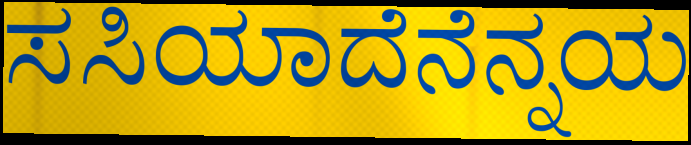
ಸಸಿಯಾದೆನೆನ್ನಯ